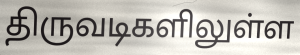
திருவடிகளிலுள்ள